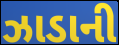
ઝાડાની